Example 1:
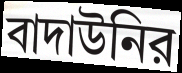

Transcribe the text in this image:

বাদাউনির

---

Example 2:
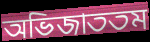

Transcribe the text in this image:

অভিজাততম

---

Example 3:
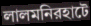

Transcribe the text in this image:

লালমনিরহাটে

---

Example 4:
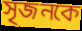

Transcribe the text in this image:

সৃজনকে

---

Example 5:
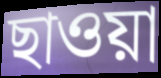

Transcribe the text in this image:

ছাওয়া